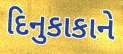
દિનુકાકાને